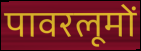
पावरलूमों